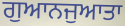
ਗੁਆਨਜੁਆਤਾ